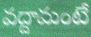
వద్దామంటే